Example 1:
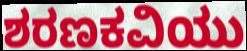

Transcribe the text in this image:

ಶರಣಕವಿಯು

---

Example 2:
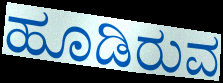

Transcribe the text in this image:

ಹೂಡಿರುವ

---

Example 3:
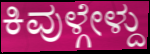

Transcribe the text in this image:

ಕಿವುಳ್ಗೇಳ್ದು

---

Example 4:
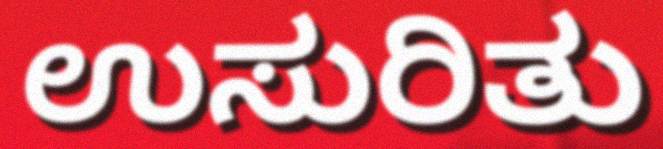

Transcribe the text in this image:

ಉಸುರಿತು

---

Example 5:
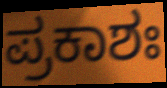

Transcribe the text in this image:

ಪ್ರಕಾಶಃ